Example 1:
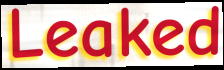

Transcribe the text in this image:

Leaked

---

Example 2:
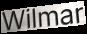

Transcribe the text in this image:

Wilmar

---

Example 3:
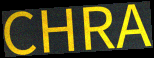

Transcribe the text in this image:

CHRA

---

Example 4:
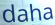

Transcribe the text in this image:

daha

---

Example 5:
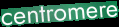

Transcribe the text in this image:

centromere